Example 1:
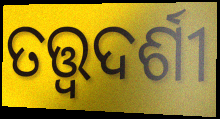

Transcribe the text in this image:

ତତ୍ତ୍ଵଦର୍ଶୀ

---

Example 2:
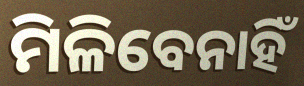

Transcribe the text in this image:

ମିଳିବେନାହିଁ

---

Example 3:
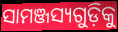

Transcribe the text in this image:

ସାମଞ୍ଜସ୍ୟଗୁଡ଼ିକୁ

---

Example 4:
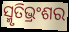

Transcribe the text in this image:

ସ୍ମୃତିଭ୍ରଂଶର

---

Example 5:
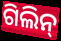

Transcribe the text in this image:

ଗିଲିନ୍